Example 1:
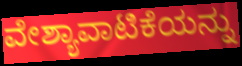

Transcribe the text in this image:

ವೇಶ್ಯಾವಾಟಿಕೆಯನ್ನು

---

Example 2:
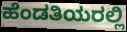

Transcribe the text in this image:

ಹೆಂಡತಿಯರಲ್ಲಿ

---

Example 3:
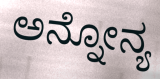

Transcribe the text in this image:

ಅನ್ನೋನ್ಯ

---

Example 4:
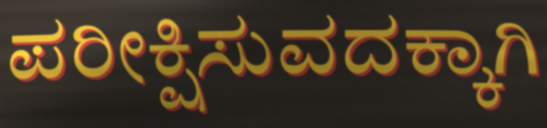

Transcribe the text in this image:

ಪರೀಕ್ಷಿಸುವದಕ್ಕಾಗಿ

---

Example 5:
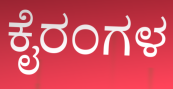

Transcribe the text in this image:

ಕೈರಂಗಳ